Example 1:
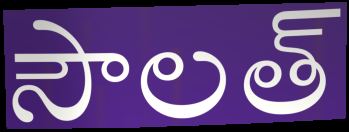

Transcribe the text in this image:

సౌలత్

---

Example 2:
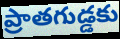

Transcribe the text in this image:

ప్రాతగుడ్డకు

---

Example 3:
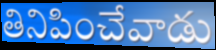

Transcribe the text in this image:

తినిపించేవాడు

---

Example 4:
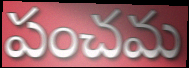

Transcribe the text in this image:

పంచమ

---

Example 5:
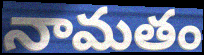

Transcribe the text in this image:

నామతం